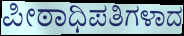
ಪೀಠಾಧಿಪತಿಗಳಾದ